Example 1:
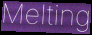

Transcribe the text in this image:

Melting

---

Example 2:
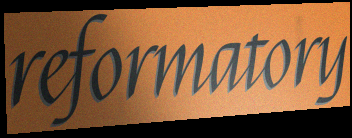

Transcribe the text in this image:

reformatory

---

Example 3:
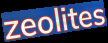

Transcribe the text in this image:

zeolites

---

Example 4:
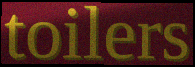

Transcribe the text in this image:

toilers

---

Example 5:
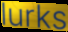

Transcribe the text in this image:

lurks